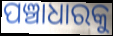
ପଞ୍ଚାଧାରକୁ